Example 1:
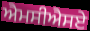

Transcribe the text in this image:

ਐਮਸੀਐਸਏ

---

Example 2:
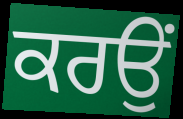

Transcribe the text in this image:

ਕਰਉਂ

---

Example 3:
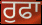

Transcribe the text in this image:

ਰੁਫਾ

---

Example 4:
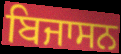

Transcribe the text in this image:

ਬਿਜਾਸਨ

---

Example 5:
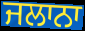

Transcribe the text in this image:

ਜਲਾਨਾ